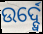
ଉର୍ଦ୍ଦ୍ୱେ